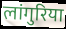
लांगुरिया